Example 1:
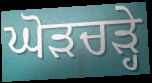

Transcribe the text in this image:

ਘੋੜਚੜ੍ਹੇ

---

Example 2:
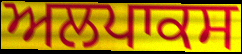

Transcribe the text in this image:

ਅਲਪਾਕਸ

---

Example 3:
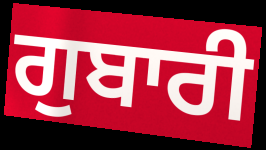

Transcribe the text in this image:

ਗੁਬਾਰੀ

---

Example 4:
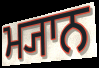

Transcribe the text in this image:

ਮ੍ਯਾਨ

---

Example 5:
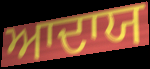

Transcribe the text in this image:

ਆਦਾਯ